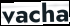
vacha